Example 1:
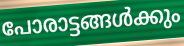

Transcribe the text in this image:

പോരാട്ടങ്ങൾക്കും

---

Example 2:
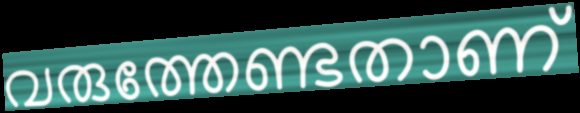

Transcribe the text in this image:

വരുത്തേണ്ടതാണ്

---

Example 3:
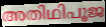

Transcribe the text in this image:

അതിഥിപൂജ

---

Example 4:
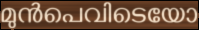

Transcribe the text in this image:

മുൻപെവിടെയോ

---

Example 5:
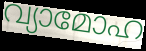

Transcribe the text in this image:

വ്യാമോഹ